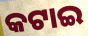
କଟାଇ